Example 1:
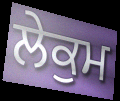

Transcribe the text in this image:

ਲੇਕੁਮ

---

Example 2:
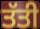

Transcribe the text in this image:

ਤੱਤੀ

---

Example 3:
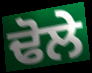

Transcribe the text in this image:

ਢੋਲੇ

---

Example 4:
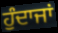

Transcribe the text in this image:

ਹੁੰਦਾਜਾਂ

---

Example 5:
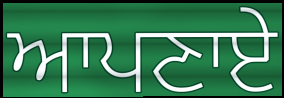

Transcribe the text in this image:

ਆਪਣਾਏ